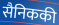
सैनिककी